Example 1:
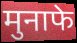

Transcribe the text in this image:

मुनाफे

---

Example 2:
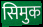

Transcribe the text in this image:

सिमुक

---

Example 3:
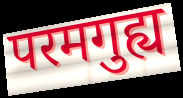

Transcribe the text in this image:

परमगुह्य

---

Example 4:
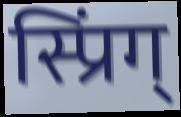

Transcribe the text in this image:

स्प्रिंग्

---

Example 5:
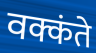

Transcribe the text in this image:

वक्कंते